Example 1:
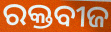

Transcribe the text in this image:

ରକ୍ତବୀଜ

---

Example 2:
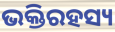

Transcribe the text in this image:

ଭକ୍ତିରହସ୍ୟ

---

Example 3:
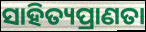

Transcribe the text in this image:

ସାହିତ୍ୟପ୍ରାଣତା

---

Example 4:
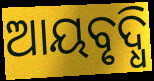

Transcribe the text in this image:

ଆୟବୃଦ୍ଧି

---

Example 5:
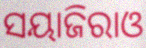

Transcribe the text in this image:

ସୟାଜିରାଓ